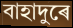
বাহাদুৰে